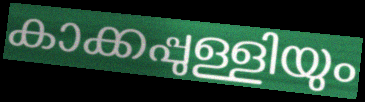
കാക്കപ്പുള്ളിയും